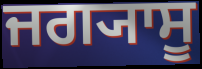
ਜਗ੍ਯਾਸੂ